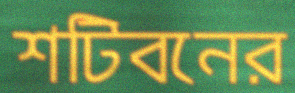
শটিবনের